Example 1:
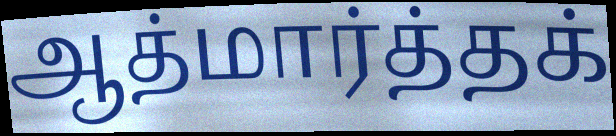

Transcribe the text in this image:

ஆத்மார்த்தக்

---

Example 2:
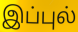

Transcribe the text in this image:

இப்புல்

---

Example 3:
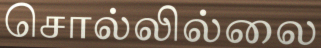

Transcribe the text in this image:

சொல்லில்லை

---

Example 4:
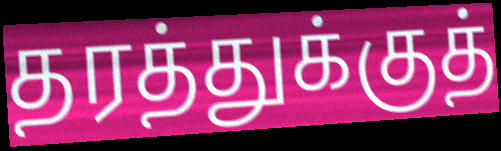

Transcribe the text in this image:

தரத்துக்குத்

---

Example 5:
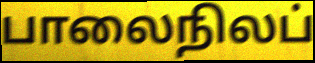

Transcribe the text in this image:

பாலைநிலப்